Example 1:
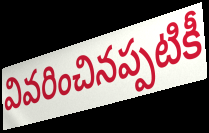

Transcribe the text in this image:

వివరించినప్పటికీ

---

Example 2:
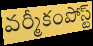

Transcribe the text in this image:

వర్మీకంపోస్ట్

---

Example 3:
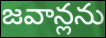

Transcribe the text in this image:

జవాన్లను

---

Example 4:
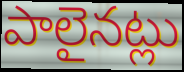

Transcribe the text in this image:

పాలైనట్లు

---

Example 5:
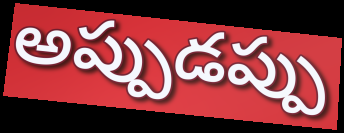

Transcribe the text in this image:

అప్పుడప్పు